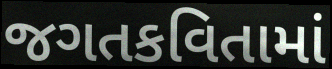
જગતકવિતામાં